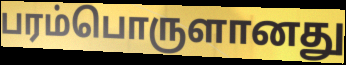
பரம்பொருளானது